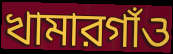
খামারগাঁও